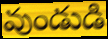
వుండుడి